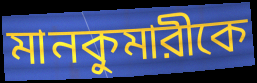
মানকুমারীকে